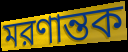
মরণান্তক